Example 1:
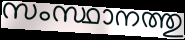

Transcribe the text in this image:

സംസ്ഥാനത്തു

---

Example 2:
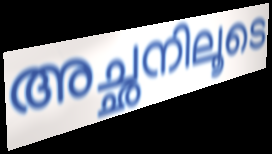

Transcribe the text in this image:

അച്ഛനിലൂടെ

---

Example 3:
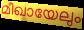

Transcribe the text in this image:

മീഖായേലും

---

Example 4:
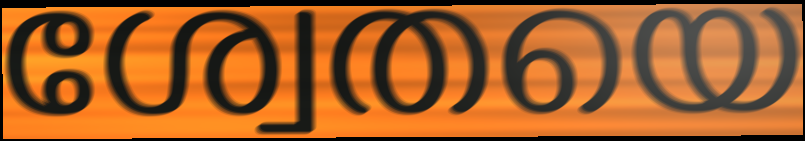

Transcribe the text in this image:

ശ്വേതയെ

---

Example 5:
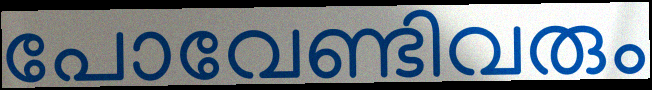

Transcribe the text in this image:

പോവേണ്ടിവരും